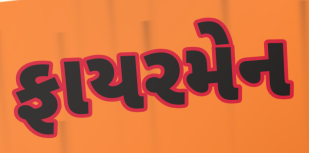
ફાયરમેન